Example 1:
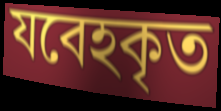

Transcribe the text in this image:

যবেহকৃত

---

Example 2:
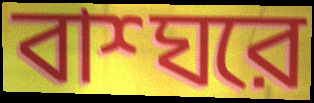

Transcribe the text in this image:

বাশ্ঘরে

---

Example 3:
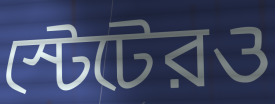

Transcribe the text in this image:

স্টেটেরও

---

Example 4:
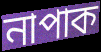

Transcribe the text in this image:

নাপাক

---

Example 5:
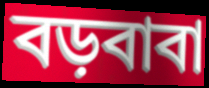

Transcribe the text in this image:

বড়বাবা